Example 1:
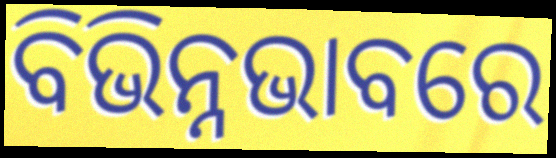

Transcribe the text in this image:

ବିଭିନ୍ନଭାବରେ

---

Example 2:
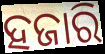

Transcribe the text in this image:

ହଜାରି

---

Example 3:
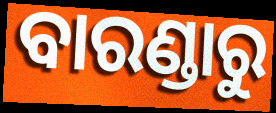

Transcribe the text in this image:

ବାରଣ୍ଡାରୁ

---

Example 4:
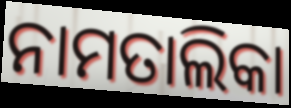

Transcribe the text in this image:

ନାମତାଲିକା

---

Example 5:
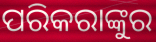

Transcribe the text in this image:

ପରିକରାଙ୍କୁର